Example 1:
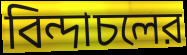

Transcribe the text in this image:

বিন্দাচলের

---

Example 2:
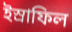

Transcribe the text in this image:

ইস্রাফিল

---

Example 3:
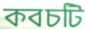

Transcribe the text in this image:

কবচটি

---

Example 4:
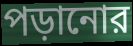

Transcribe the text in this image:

পড়ানোর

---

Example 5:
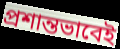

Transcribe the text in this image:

প্রশান্তভাবেই